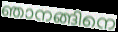
ഞാനങ്ങിനെ